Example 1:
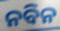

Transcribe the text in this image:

ନବିନ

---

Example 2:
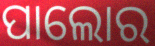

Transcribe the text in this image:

ପାଲୋର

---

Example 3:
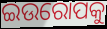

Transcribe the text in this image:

ଇଉରୋପକୁ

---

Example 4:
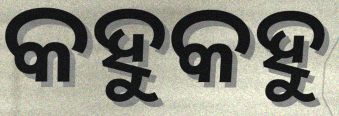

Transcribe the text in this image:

କହୁକହୁ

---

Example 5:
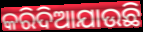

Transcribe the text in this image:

କରିଦିଆଯାଉଛି